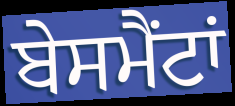
ਬੇਸਮੈਂਟਾਂ